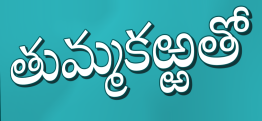
తుమ్మకఱ్ఱతో